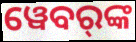
ୱେବର୍‌ଙ୍କ